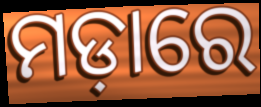
ମଡ଼ାରେ